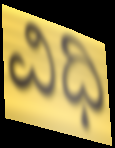
ವಿಧಿ